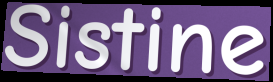
Sistine